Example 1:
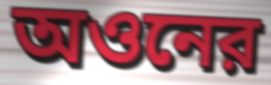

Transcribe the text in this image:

অওনের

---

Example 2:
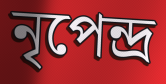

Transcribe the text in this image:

নৃপেন্দ্র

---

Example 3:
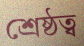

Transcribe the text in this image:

শ্রেষ্ঠত্ব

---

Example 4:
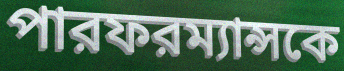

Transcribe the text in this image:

পারফরম্যান্সকে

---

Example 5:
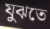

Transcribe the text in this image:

যুঝতে